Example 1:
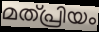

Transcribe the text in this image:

മത്പ്രിയം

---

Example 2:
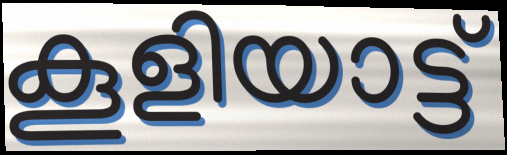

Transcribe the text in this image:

കൂളിയാട്ട്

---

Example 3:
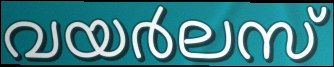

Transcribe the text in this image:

വയർലസ്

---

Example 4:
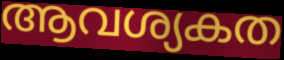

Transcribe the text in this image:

ആവശ്യകത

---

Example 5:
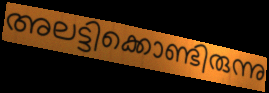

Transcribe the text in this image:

അലട്ടിക്കൊണ്ടിരുന്നു